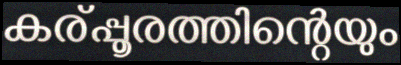
കര്പ്പൂരത്തിന്റെയും